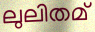
ലുലിതമ്